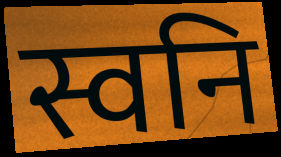
स्वनि